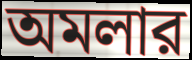
অমলার